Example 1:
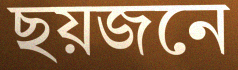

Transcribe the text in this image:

ছয়জনে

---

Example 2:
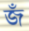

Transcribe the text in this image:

জঁ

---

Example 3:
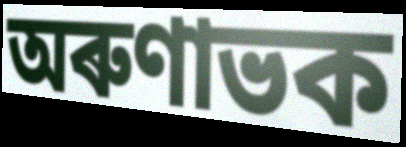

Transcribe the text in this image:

অৰুণাভক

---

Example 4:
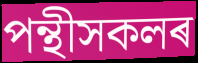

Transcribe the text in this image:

পন্থীসকলৰ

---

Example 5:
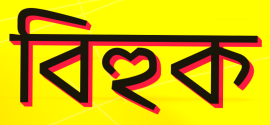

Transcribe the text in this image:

বিহুক